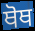
ਥੋਥ